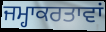
ਜਮ੍ਹਾਕਰਤਾਵਾਂ